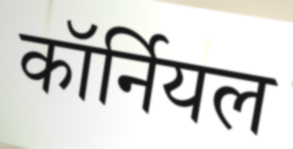
कॉर्नियल